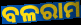
ବଳରାମ